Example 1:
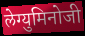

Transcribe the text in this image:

लेग्युमिनोजी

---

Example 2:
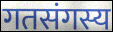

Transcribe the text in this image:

गतसंगस्य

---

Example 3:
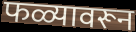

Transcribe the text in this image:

फळ्यावरून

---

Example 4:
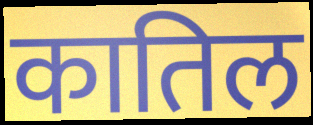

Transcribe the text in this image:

कातिल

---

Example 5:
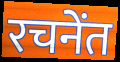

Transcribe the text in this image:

रचनेंत